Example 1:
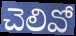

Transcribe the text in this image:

చెలివో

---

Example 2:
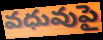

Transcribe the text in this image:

వధువుపై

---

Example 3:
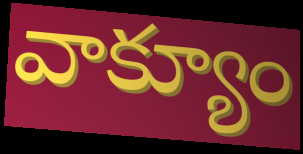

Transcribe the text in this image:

వాక్యూం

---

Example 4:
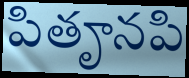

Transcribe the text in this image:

పితౄనపి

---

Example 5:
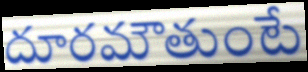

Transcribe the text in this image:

దూరమౌతుంటే